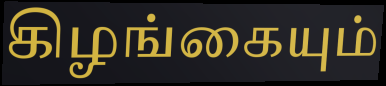
கிழங்கையும்